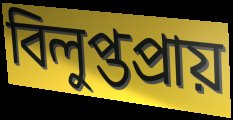
বিলুপ্তপ্রায়